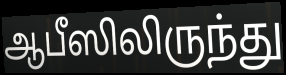
ஆபீஸிலிருந்து